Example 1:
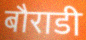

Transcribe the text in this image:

बौराडी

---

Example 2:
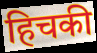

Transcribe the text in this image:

हिचकी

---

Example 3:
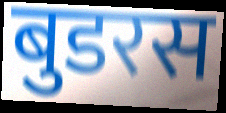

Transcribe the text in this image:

बुडरस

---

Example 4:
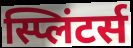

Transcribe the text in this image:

स्प्लिंटर्स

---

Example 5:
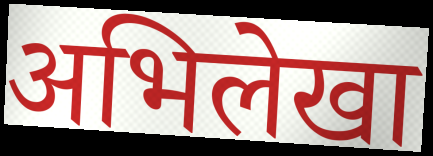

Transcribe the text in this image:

अभिलेखा